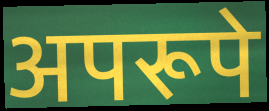
अपरूपे